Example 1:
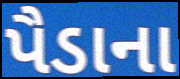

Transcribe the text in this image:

પૈડાના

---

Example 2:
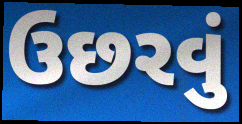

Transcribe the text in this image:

ઉછરવું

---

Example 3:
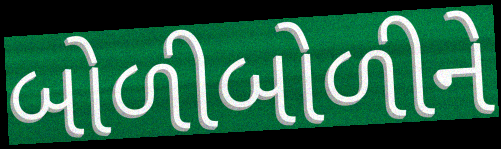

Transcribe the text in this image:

બોળીબોળીને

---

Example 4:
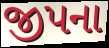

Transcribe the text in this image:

જીપના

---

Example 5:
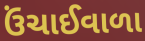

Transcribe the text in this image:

ઉંચાઈવાળા